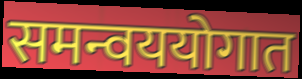
समन्वययोगात